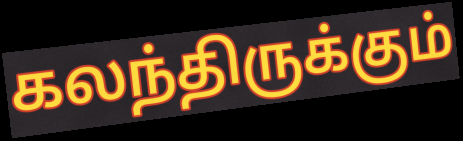
கலந்திருக்கும்